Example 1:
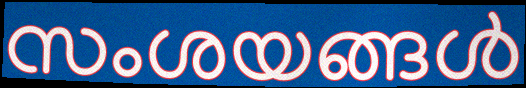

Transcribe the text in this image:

സംശയങ്ങൾ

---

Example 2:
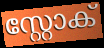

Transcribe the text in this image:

സ്റ്റോക്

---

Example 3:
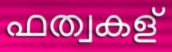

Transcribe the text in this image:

ഫത്വകള്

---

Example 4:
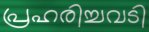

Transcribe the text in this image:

പ്രഹരിച്ചവടി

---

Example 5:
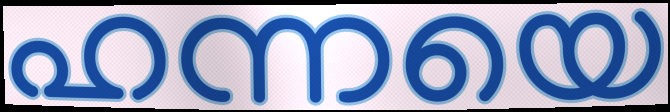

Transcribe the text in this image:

ഹന്നയെ